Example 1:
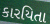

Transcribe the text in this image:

કારયિતા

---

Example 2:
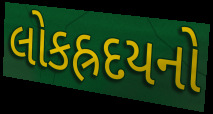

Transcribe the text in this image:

લોકહ્રદયનો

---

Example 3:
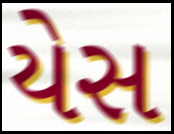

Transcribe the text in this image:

યેસ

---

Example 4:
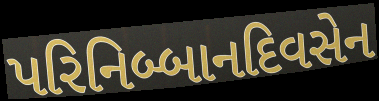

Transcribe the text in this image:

પરિનિબ્બાનદિવસેન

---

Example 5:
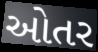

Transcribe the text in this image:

ઓતર